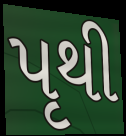
પૃથી